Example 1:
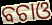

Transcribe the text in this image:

ବଚାଓ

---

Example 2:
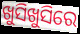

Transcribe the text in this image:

ଖୁସିଖୁସିରେ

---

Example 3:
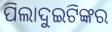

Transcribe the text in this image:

ପିଲାଦୁଇଟିଙ୍କର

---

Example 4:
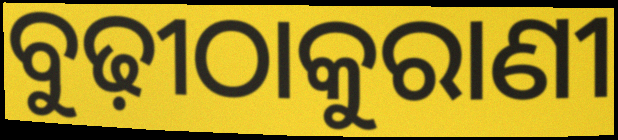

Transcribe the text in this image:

ବୁଢ଼ୀଠାକୁରାଣୀ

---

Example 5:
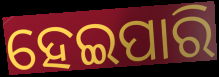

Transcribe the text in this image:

ହେଇପାରି